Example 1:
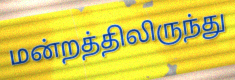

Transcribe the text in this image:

மன்றத்திலிருந்து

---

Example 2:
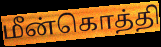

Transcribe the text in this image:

மீன்கொத்தி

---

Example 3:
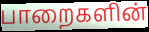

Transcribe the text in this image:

பாறைகளின்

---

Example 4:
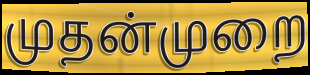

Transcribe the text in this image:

முதன்முறை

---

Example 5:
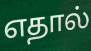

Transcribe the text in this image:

எதால்